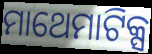
ମାଥେମାଟିକ୍ସ